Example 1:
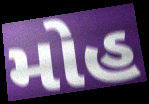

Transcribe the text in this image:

મોહ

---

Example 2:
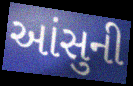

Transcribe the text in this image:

આંસુની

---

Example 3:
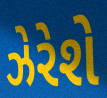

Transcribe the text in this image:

ઝેરેશે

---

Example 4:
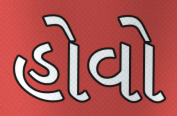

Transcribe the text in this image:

હોવો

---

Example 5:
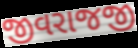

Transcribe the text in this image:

જીવરાજજી